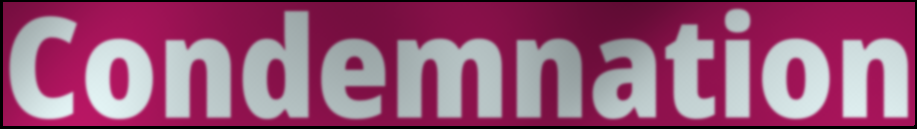
Condemnation